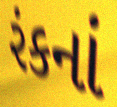
રંકનાં